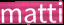
matti